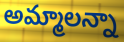
అమ్మాలన్నా